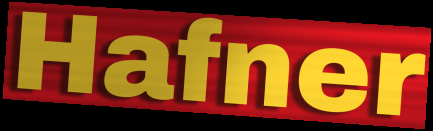
Hafner